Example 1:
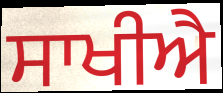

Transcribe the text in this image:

ਸਾਖੀਐ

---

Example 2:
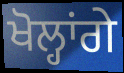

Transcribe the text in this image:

ਖੋਲ੍ਹਾਂਗੇ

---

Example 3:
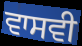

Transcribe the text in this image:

ਵਾਸਵੀ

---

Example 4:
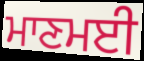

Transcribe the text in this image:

ਮਾਣਮਈ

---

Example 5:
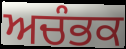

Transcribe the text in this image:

ਅਚੰਭਕ